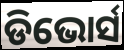
ଡିଭୋର୍ସ